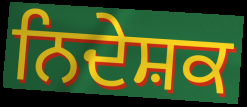
ਨਿਦੇਸ਼ਕ